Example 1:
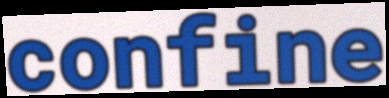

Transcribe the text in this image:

confine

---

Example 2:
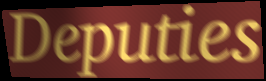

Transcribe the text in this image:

Deputies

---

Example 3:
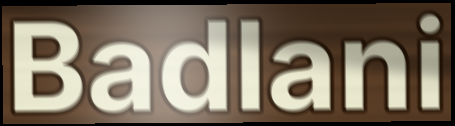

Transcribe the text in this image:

Badlani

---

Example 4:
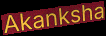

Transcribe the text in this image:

Akanksha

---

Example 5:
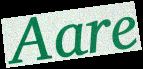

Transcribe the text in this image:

Aare